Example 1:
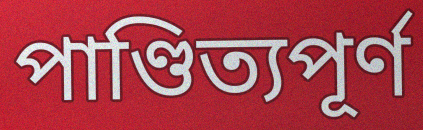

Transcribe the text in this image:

পাণ্ডিত্যপূর্ণ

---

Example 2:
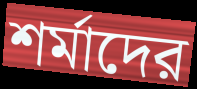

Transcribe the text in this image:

শর্মাদের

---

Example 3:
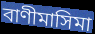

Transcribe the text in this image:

বাণীমাসিমা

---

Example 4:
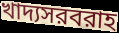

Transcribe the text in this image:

খাদ্যসরবরাহ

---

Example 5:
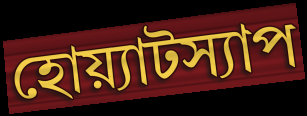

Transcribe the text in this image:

হোয়্যাটস্যাপ